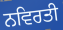
ਨਵਿਰਤੀ